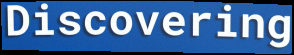
Discovering